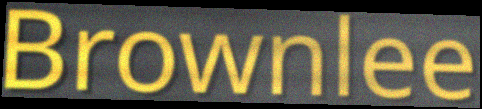
Brownlee